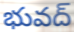
భువద్